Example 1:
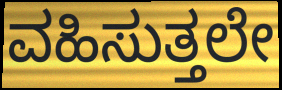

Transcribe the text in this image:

ವಹಿಸುತ್ತಲೇ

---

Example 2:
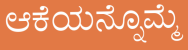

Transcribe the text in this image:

ಆಕೆಯನ್ನೊಮ್ಮೆ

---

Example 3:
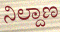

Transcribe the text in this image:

ನಿಲ್ದಾಣ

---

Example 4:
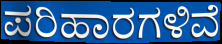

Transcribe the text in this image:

ಪರಿಹಾರಗಳಿವೆ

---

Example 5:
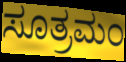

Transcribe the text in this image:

ಸೂತ್ರಮಂ